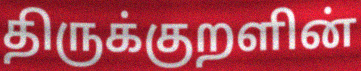
திருக்குறளின்